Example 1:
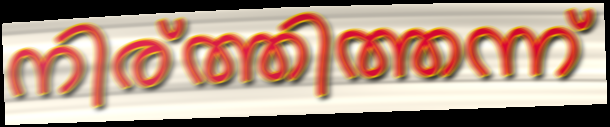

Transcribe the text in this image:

നിര്ത്തിത്തന്ന്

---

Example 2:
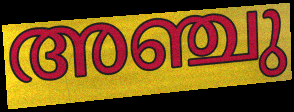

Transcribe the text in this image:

അഞ്ചു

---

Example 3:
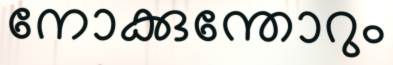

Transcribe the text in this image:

നോക്കുന്തോറും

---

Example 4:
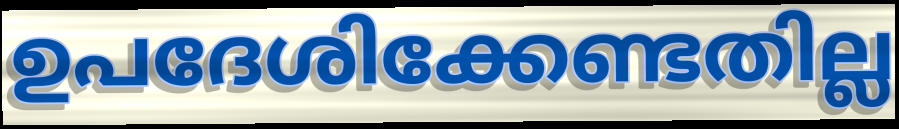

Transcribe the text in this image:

ഉപദേശിക്കേണ്ടതില്ല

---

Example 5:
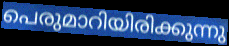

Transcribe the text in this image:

പെരുമാറിയിരിക്കുന്നു